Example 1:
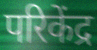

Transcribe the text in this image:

परिकेंद्र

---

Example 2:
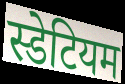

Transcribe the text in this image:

स्डेटियम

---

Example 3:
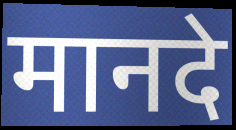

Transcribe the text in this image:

मानदे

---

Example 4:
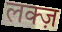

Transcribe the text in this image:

लक्ज़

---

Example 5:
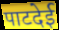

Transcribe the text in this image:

पाटदेई